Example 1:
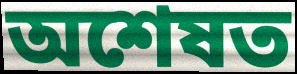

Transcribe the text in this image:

অশেষত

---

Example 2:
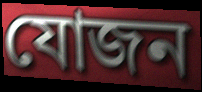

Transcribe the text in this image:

যোজন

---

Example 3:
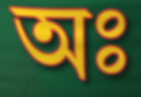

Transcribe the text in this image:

অঃ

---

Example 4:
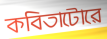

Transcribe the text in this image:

কবিতাটোৱে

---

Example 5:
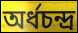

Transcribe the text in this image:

অৰ্ধচন্দ্ৰ